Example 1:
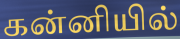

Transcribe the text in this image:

கன்னியில்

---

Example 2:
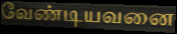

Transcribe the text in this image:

வேண்டியவனை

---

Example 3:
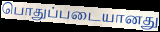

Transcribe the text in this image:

பொதுப்படையானது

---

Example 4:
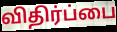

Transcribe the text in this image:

விதிர்ப்பை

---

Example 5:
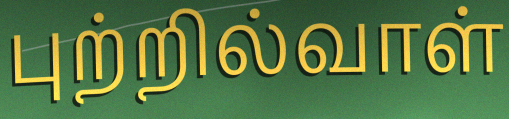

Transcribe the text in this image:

புற்றில்வாள்